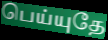
பெய்யுதே